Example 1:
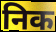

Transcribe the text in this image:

निक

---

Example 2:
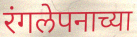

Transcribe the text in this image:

रंगलेपनाच्या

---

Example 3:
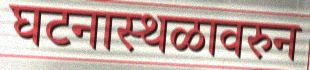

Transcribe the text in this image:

घटनास्थळावरुन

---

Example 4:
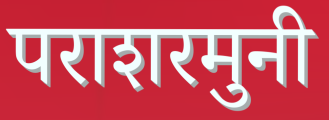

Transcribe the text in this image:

पराशरमुनी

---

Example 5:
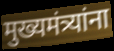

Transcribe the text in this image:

मुख्यमंत्र्यांना